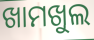
ଖାମଖୁଲ